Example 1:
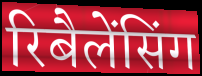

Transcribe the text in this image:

रिबैलेंसिंग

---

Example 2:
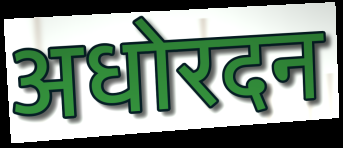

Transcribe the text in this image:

अधोरदन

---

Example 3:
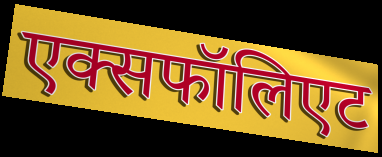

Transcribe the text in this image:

एक्सफॉलिएट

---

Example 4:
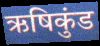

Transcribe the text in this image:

ऋषिकुंड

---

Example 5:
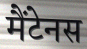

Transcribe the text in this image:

मैंटेनस